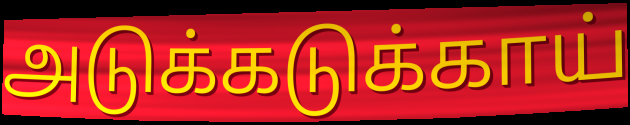
அடுக்கடுக்காய்